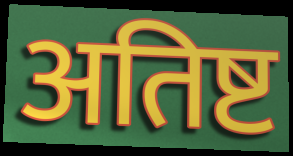
अतिष्ट